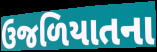
ઉજળિયાતના